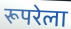
रूपरेला